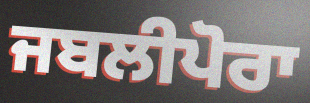
ਜਬਲੀਪੋਰਾ